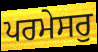
ਪਰਮੇਸਰੁ